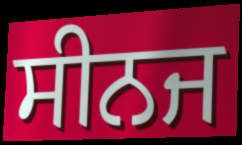
ਸੀਨਜ